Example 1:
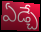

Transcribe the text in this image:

ఏడ్చే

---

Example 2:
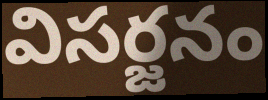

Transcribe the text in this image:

విసర్జనం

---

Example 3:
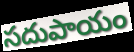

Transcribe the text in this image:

సదుపాయం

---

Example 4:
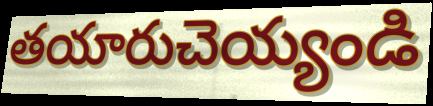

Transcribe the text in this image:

తయారుచెయ్యండి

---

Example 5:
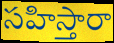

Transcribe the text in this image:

సహిస్తారా